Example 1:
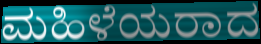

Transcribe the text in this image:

ಮಹಿಳೆಯರಾದ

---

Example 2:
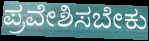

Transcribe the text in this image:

ಪ್ರವೇಶಿಸಬೇಕು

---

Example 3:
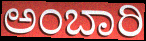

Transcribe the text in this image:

ಅಂಬಾರಿ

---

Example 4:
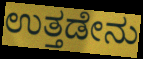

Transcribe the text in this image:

ಉತ್ತಡೇನು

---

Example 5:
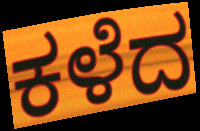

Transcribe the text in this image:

ಕಳೆದ